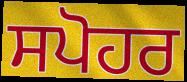
ਸਪੋਹਰ